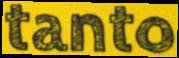
tanto